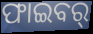
ଫାଇବର୍